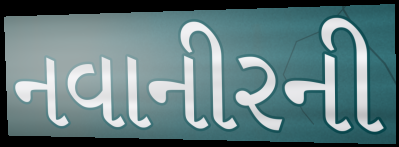
નવાનીરની